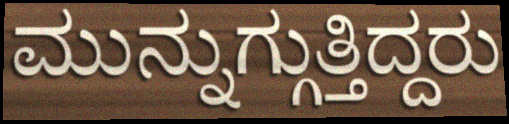
ಮುನ್ನುಗ್ಗುತ್ತಿದ್ದರು